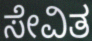
ಸೇವಿತ